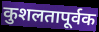
कुशलतापूर्वक